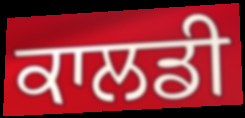
ਕਾਲਡੀ